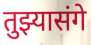
तुझ्यासंगे